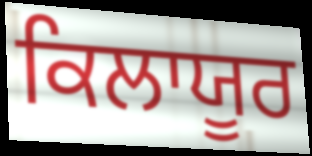
ਕਿਲਾਯੂਰ